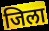
जिला